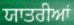
ਯਾਤਰੀਆਂ